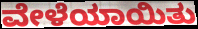
ವೇಳೆಯಾಯಿತು